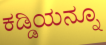
ಕಡ್ಡಿಯನ್ನೂ